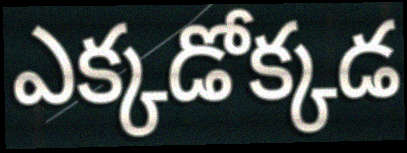
ఎక్కడోక్కడ